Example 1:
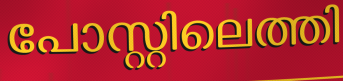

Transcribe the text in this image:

പോസ്റ്റിലെത്തി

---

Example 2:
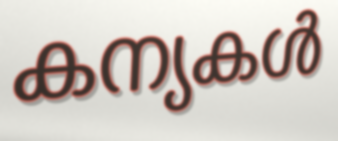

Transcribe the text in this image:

കന്യകൾ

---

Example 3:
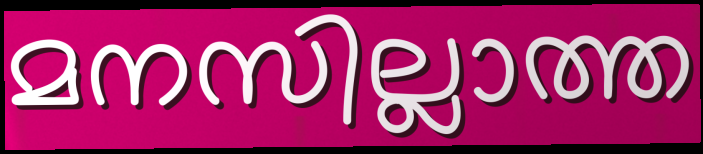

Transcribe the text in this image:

മനസില്ലാത്ത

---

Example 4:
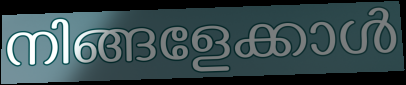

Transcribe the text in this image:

നിങ്ങളേക്കാൾ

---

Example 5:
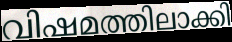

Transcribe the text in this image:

വിഷമത്തിലാക്കി